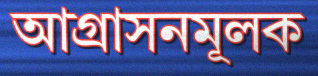
আগ্রাসনমূলক